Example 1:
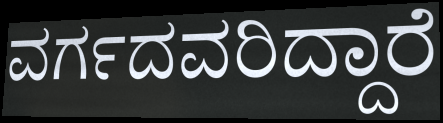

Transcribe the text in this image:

ವರ್ಗದವರಿದ್ದಾರೆ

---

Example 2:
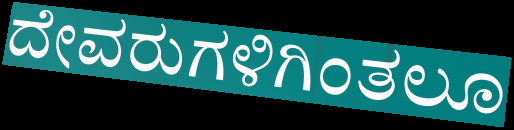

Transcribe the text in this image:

ದೇವರುಗಳಿಗಿಂತಲೂ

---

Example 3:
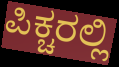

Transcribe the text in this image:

ಪಿಕ್ಚರಲ್ಲಿ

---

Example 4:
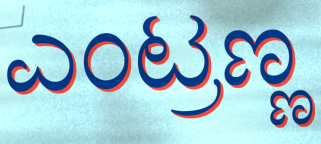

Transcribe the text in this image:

ಎಂಟ್ರಣ್ಣ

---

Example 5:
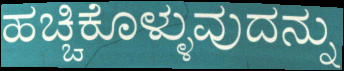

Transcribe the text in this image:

ಹಚ್ಚಿಕೊಳ್ಳುವುದನ್ನು